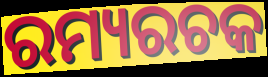
ରମ୍ୟରଚକ